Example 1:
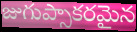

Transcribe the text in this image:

జుగుప్సాకరమైన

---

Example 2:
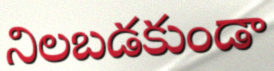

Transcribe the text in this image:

నిలబడకుండా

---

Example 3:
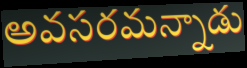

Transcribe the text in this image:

అవసరమన్నాడు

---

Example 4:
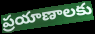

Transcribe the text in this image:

ప్రయాణాలకు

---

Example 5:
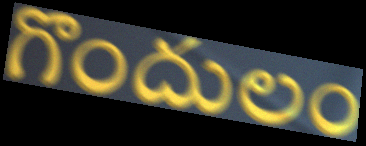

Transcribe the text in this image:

గొందులం